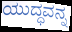
ಯುದ್ಧವನ್ನ